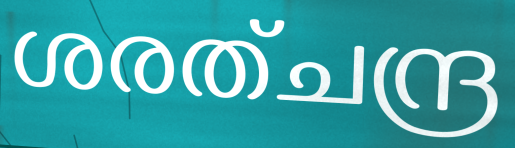
ശരത്ചന്ദ്ര